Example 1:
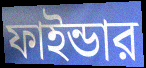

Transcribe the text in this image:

ফাইন্ডার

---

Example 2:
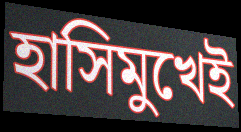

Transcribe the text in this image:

হাসিমুখেই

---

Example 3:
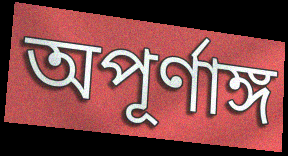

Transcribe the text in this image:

অপূর্ণাঙ্গ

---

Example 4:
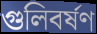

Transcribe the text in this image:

গুলিবর্ষণ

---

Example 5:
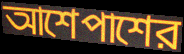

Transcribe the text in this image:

আশেপাশের